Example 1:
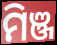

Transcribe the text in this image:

ମିଞ୍ଜ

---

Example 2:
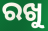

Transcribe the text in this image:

ରଖୁ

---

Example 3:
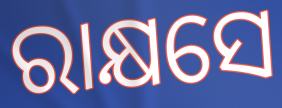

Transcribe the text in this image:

ରାକ୍ଷସେ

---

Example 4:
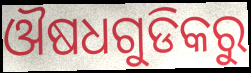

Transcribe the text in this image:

ଔଷଧଗୁଡିକରୁ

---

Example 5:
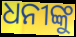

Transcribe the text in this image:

ଧନୀଙ୍କୁ